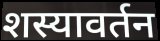
शस्यावर्तन